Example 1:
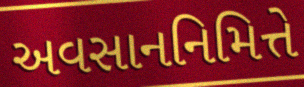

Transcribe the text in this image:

અવસાનનિમિત્તે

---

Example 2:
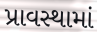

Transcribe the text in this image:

પ્રાવસ્થામાં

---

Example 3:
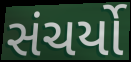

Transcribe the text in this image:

સંચર્યો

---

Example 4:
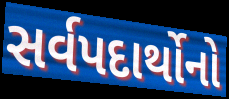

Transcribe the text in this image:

સર્વપદાર્થોનો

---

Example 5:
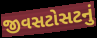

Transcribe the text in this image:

જીવસટોસટનું